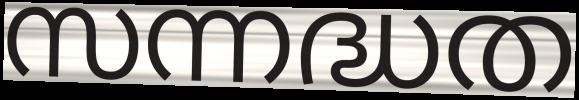
സന്നദ്ധത